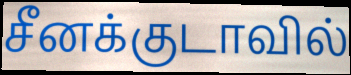
சீனக்குடாவில்